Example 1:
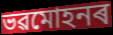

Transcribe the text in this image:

ভৱমোহনৰ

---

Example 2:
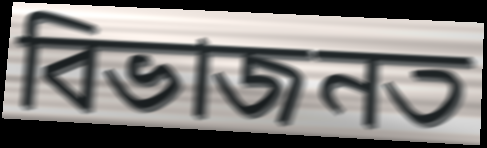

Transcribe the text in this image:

বিভাজনত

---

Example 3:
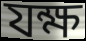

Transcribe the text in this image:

যক্ষ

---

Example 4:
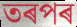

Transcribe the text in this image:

তৰপৰ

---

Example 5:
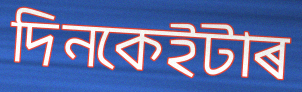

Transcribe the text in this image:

দিনকেইটাৰ